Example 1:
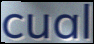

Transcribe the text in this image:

cual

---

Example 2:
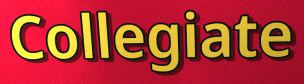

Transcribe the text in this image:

Collegiate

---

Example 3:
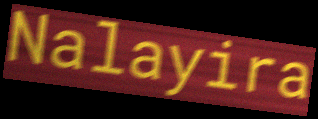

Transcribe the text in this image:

Nalayira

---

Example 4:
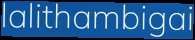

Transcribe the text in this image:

lalithambigai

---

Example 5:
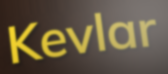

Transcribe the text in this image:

Kevlar